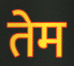
तेम